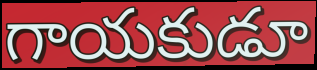
గాయకుడూ